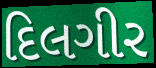
દિલગીર